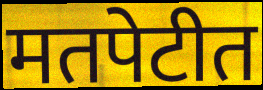
मतपेटीत